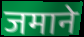
जमाने